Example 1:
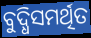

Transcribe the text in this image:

ବୁଦ୍ଧିସମର୍ଥିତ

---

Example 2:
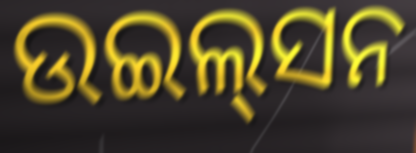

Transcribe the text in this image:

ଉଇଲ୍‌ସନ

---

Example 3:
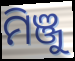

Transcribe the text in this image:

ମିଞ୍ଜୁ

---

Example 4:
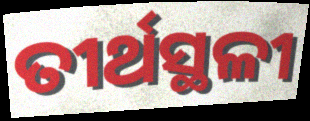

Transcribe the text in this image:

ତୀର୍ଥସ୍ଥଳୀ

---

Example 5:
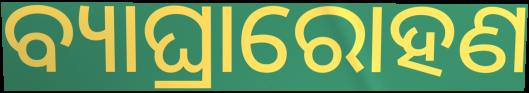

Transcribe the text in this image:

ବ୍ୟାଘ୍ରାରୋହଣ